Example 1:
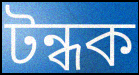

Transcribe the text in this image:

টন্ধক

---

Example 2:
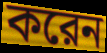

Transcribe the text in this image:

করেন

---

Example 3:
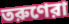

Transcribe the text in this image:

তরুণেরা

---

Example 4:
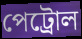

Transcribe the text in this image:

পেট্রোল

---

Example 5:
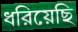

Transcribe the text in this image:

ধরিয়েছি